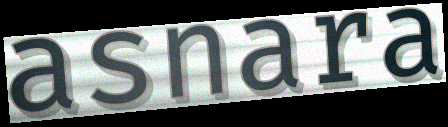
asnara